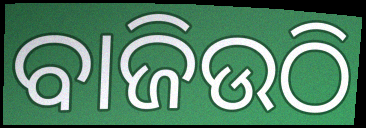
ବାଜିଉଠି